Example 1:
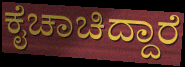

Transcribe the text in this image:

ಕೈಚಾಚಿದ್ದಾರೆ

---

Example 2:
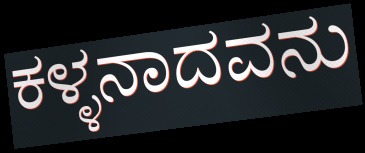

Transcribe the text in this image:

ಕಳ್ಳನಾದವನು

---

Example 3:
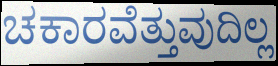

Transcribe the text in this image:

ಚಕಾರವೆತ್ತುವುದಿಲ್ಲ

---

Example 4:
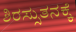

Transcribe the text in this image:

ಶಿರಸ್ಸುತನಕ್ಕೆ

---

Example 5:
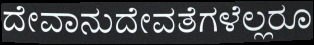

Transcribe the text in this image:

ದೇವಾನುದೇವತೆಗಳೆಲ್ಲರೂ